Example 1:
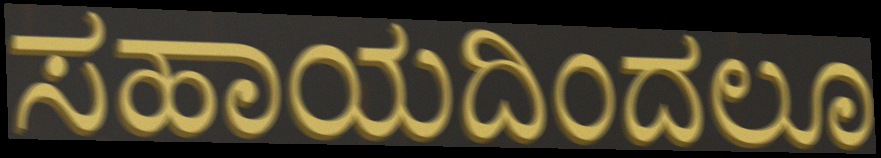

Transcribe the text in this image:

ಸಹಾಯದಿಂದಲೂ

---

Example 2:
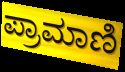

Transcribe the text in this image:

ಪ್ರಾಮಾಣಿ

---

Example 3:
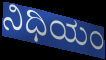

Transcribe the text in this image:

ನಿಧಿಯಂ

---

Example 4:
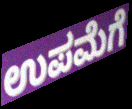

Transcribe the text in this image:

ಉಪಮೆಗೆ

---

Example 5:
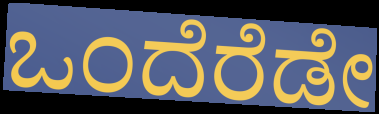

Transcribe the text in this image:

ಒಂದೆರೆಡೇ